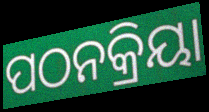
ପଠନକ୍ରିୟା